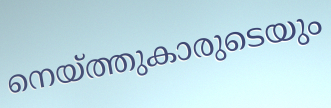
നെയ്ത്തുകാരുടെയും